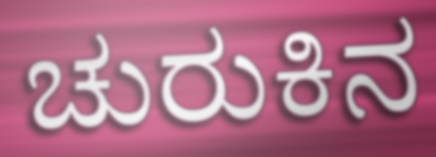
ಚುರುಕಿನ